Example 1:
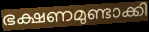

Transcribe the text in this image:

ഭക്ഷണമുണ്ടാക്കി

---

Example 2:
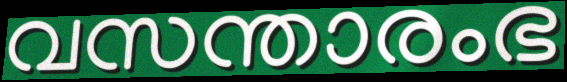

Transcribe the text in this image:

വസന്താരംഭ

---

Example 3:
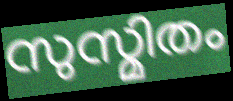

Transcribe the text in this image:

സുസ്മിതം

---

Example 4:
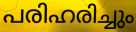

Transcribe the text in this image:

പരിഹരിച്ചും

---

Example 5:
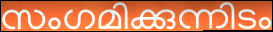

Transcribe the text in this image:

സംഗമിക്കുന്നിടം